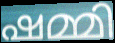
ഷമ്മി